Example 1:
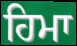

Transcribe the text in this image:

ਹਿਮਾ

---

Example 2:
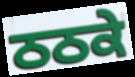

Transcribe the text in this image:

ਠਠਕੇ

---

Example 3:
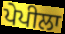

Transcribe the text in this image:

ਪੇਪੀਲਾ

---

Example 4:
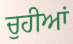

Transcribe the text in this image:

ਚੁਹੀਆਂ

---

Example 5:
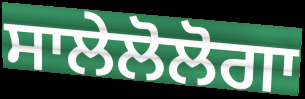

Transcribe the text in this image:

ਸਾਲੇਲੋਲੋਗਾ